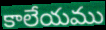
కాలేయము